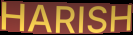
HARISH